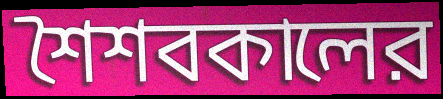
শৈশবকালের